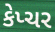
કેપ્ચર